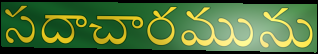
సదాచారమును